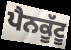
ਪੈਨਕੂੱਟੂ